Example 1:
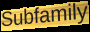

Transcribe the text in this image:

Subfamily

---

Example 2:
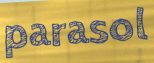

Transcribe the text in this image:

parasol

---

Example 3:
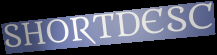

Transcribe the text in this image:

SHORTDESC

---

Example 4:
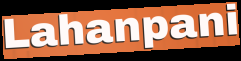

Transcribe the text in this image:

Lahanpani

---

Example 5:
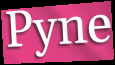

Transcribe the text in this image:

Pyne